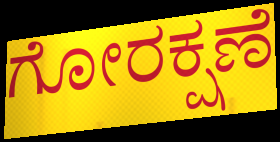
ಗೋರಕ್ಷಣೆ